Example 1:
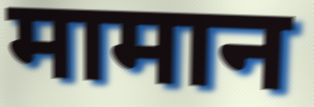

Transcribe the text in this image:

मामान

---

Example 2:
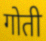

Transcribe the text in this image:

गोती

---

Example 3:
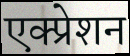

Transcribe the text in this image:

एक्प्रेशन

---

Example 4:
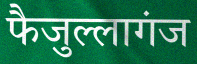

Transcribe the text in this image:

फैजुल्लागंज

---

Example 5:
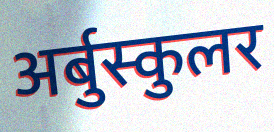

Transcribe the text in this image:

अर्बुस्कुलर